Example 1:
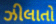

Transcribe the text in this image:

ઝીલાતો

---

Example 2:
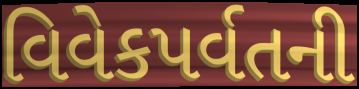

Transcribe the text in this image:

વિવેકપર્વતની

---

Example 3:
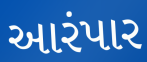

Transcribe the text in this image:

આરંપાર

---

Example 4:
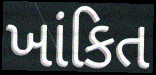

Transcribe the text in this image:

ખાંકિત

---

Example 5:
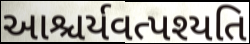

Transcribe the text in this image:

આશ્ચર્યવત્પશ્યતિ